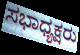
ಸಭಾಧ್ಯಕ್ಷರು